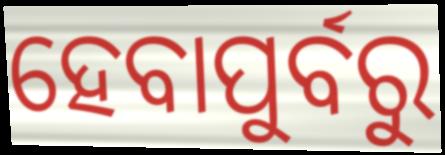
ହେବାପୁର୍ବରୁ